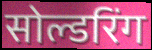
सोल्डरिंग